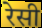
रेसी